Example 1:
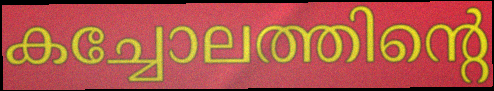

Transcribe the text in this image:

കച്ചോലത്തിന്റെ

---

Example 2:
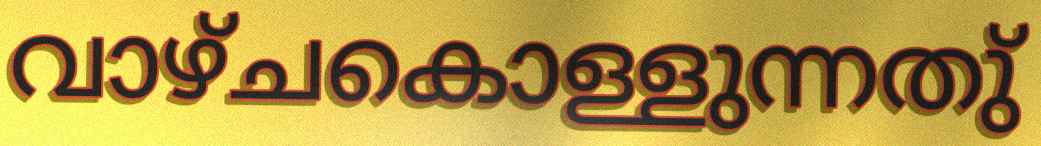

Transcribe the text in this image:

വാഴ്ചകൊള്ളുന്നതു്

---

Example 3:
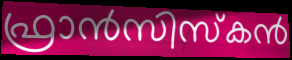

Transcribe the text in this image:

ഫ്രാൻസിസ്കൻ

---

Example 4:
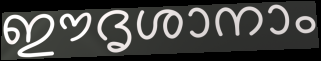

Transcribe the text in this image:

ഈദൃശാനാം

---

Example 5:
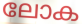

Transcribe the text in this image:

ലോക